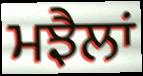
ਮਝੈਲਾਂ